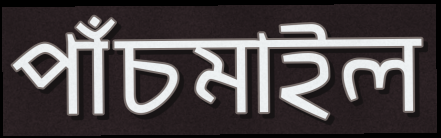
পাঁচমাইল